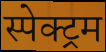
स्पेक्ट्रम